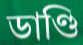
ডাণ্ডি